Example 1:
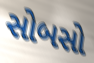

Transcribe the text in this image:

સોબસો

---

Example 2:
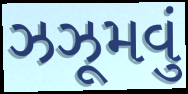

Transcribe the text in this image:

ઝઝૂમવું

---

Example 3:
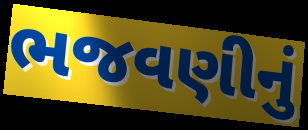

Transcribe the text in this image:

ભજવણીનું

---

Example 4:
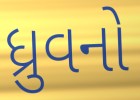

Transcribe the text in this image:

ધ્રુવનો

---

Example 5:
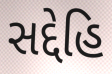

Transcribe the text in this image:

સદ્દેહિ